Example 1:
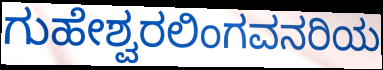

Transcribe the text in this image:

ಗುಹೇಶ್ವರಲಿಂಗವನರಿಯ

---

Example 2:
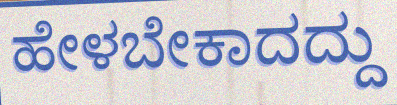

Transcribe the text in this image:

ಹೇಳಬೇಕಾದದ್ದು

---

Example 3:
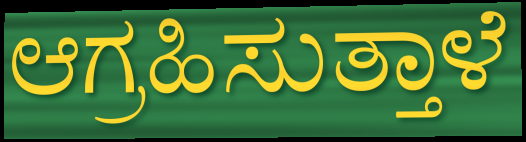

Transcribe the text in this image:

ಆಗ್ರಹಿಸುತ್ತಾಳೆ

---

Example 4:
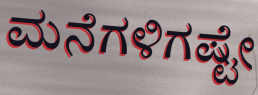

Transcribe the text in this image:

ಮನೆಗಳಿಗಷ್ಟೇ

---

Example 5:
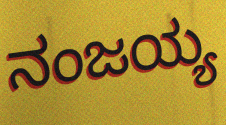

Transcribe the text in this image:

ನಂಜಯ್ಯ